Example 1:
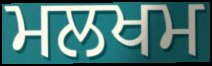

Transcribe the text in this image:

ਮਲਖਮ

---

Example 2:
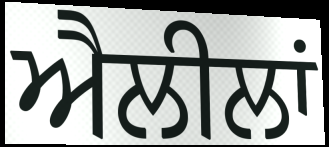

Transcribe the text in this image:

ਐਲੀਲਾਂ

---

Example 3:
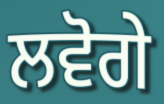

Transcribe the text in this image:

ਲਵੋਗੇ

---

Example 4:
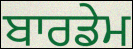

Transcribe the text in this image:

ਬਾਰਡੇਮ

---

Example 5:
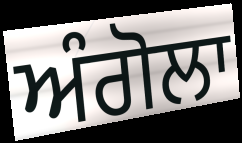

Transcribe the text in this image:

ਅੰਗੋਲਾ